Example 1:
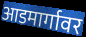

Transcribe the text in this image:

आडमार्गावर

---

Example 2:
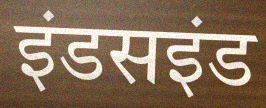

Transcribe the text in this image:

इंडसइंड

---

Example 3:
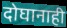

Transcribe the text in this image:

दोघानाही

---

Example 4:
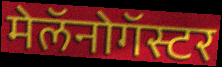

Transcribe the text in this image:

मेलॅनोगॅस्टर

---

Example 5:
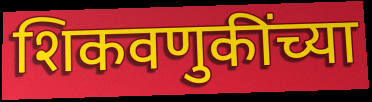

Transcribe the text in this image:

शिकवणुकींच्या